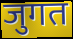
जुगत